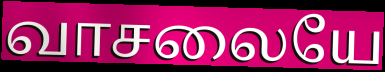
வாசலையே